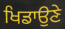
ਖਿਡਾਉਣੇ